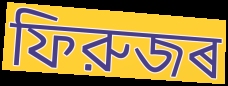
ফিৰুজৰ